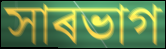
সাৰভাগ